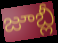
జూబ్లీ